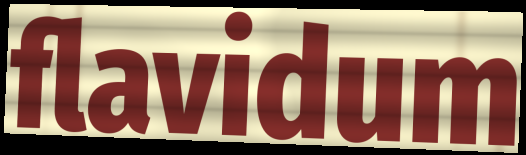
flavidum